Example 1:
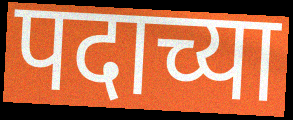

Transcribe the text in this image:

पदाच्या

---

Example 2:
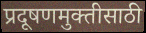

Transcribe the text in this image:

प्रदूषणमुक्तीसाठी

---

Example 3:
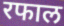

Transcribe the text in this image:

रफाल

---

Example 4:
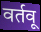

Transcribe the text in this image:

वर्तवू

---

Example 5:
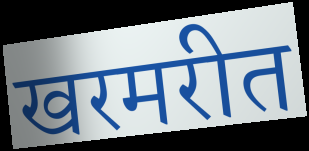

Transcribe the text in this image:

खरमरीत